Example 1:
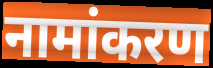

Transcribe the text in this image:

नामांकरण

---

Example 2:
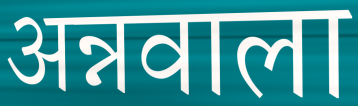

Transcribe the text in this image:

अन्नवाला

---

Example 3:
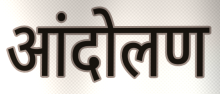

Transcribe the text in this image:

आंदोलण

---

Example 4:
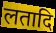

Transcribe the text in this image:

लतादि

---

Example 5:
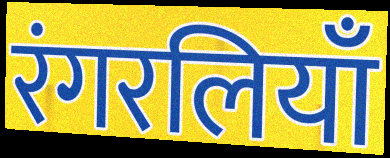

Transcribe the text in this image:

रंगरलियाँ